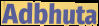
Adbhuta